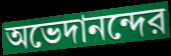
অভেদানন্দের